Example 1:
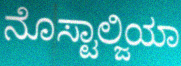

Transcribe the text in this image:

ನೊಸ್ಟಾಲ್ಜಿಯಾ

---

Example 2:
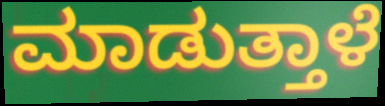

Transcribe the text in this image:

ಮಾಡುತ್ತಾಳೆ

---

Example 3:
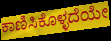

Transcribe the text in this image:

ಕಾಣಿಸಿಕೊಳ್ಳದೆಯೇ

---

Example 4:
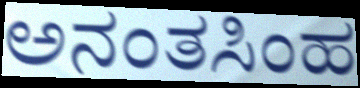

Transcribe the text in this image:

ಅನಂತಸಿಂಹ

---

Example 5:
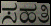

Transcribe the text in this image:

ಸಹತಿ